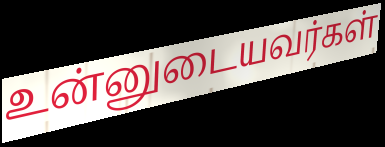
உன்னுடையவர்கள்